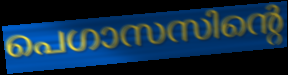
പെഗാസസിന്റെ